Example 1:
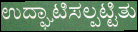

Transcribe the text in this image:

ಉದ್ಘಾಟಿಸಲ್ಪಟ್ಟಿತು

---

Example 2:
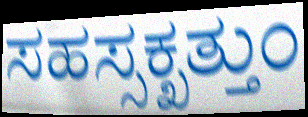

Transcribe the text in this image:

ಸಹಸ್ಸಕ್ಖತ್ತುಂ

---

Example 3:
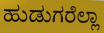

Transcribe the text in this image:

ಹುಡುಗರೆಲ್ಲಾ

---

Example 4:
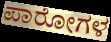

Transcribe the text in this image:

ಪಾರೋಗಳ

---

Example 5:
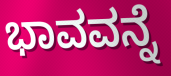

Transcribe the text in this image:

ಭಾವವನ್ನೆ